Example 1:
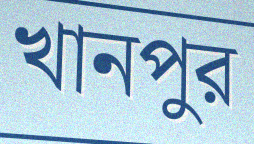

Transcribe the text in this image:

খানপুর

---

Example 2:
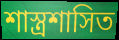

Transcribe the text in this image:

শাস্ত্রশাসিত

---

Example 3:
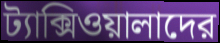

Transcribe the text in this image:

ট্যাক্সিওয়ালাদের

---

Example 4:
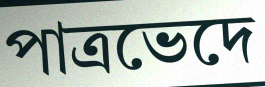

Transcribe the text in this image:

পাত্রভেদে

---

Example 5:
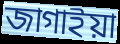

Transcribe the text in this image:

জাগাইয়া